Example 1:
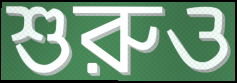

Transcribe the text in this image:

শুরুও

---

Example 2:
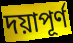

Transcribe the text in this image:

দয়াপূর্ণ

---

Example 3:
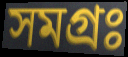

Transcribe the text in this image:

সমগ্রঃ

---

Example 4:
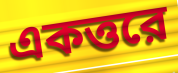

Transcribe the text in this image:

একত্তরে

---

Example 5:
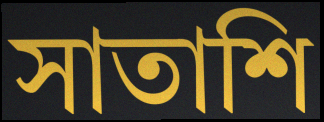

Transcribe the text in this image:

সাতাশি